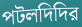
পটলদিদির